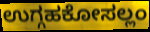
ಉಗ್ಗಹಕೋಸಲ್ಲಂ